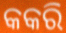
କକରି